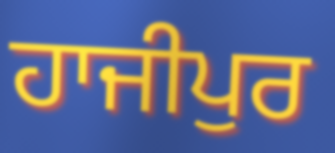
ਹਾਜੀਪੁਰ